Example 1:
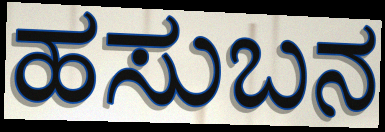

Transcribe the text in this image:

ಹಸುಬನ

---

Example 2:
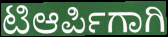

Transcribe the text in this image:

ಟಿಆರ್ಪಿಗಾಗಿ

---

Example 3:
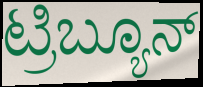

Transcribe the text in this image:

ಟ್ರಿಬ್ಯೂನ್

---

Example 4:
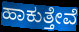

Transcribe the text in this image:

ಹಾಕುತ್ತೇವೆ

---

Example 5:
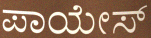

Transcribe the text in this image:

ಪಾಯೇಸ್